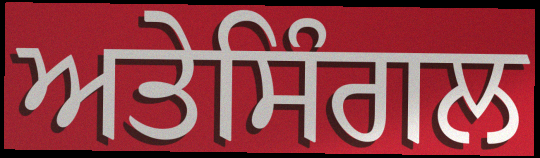
ਅਤੇਸਿੰਗਲ